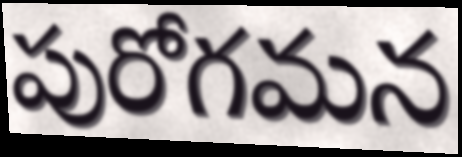
పురోగమన